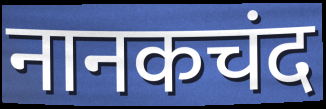
नानकचंद